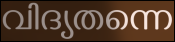
വിദ്യതന്നെ